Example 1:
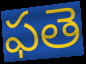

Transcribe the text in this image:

ఫతె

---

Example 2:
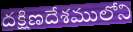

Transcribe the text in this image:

దక్షిణదేశములోని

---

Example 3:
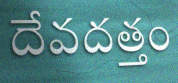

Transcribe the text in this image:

దేవదత్తం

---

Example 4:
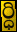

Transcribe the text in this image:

ర్ధి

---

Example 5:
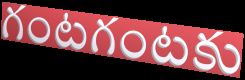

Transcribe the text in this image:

గంటగంటకు